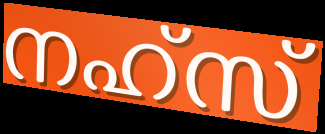
നഹ്സ്